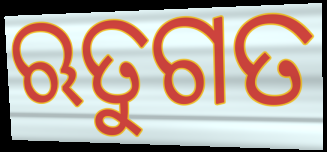
ଋତୁଗତ